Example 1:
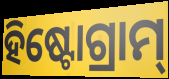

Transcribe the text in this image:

ହିଷ୍ଟୋଗ୍ରାମ୍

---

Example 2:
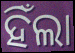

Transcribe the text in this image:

ହିଁଲା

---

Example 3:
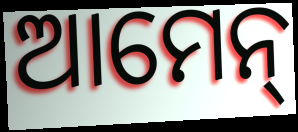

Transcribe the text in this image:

ଆମେନ୍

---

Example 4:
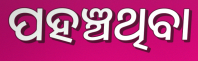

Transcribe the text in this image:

ପହଞ୍ଚଥିବା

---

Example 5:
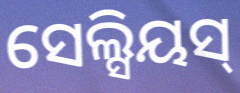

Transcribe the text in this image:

ସେଲ୍ସିୟସ୍